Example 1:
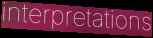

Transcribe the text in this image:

interpretations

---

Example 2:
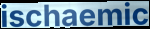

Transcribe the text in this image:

ischaemic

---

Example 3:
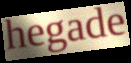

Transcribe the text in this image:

hegade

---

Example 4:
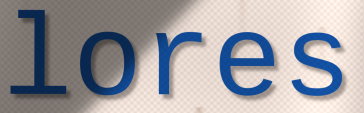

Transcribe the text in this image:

lores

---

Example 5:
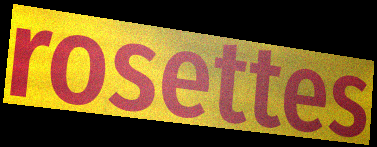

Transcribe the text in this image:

rosettes